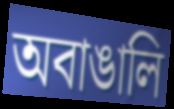
অবাঙালি